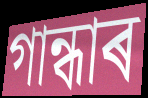
গান্ধাৰ